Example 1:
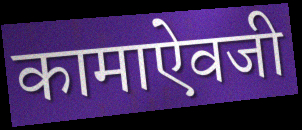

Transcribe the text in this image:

कामाऐवजी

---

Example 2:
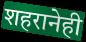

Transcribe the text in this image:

शहरानेही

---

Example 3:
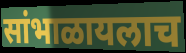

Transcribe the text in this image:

सांभाळायलाच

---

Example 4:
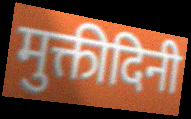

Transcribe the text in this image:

मुक्तीदिनी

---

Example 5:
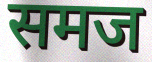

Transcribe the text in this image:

समज